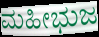
ಮಹೀಭುಜ